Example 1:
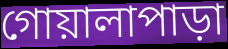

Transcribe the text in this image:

গোয়ালাপাড়া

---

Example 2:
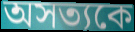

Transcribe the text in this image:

অসত্যকে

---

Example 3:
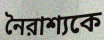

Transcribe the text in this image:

নৈরাশ্যকে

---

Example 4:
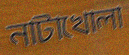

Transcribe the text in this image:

নাটাখোলা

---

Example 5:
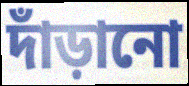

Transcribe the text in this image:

দাঁড়ানো